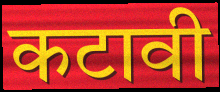
कटावी